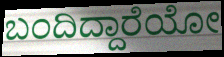
ಬಂದಿದ್ದಾರೆಯೋ